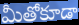
మీతోకూడా